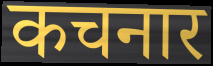
कचनार